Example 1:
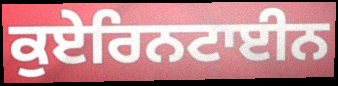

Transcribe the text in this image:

ਕੁਏਰਿਨਟਾਈਨ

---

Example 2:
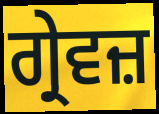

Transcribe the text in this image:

ਗ੍ਰੇਵਜ਼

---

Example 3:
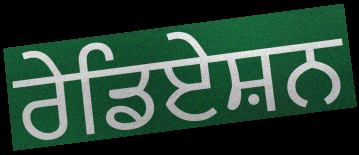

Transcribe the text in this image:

ਰੇਡਿਏਸ਼ਨ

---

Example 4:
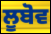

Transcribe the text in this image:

ਲੂਬੋਵ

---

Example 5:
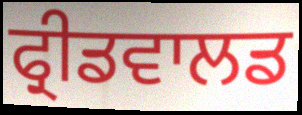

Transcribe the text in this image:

ਫ੍ਰੀਡਵਾਲਡ